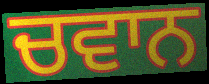
ਚਵਾਨ